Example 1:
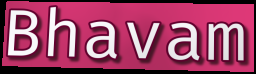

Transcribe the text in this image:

Bhavam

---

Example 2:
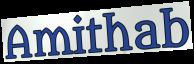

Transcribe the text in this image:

Amithab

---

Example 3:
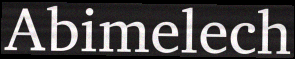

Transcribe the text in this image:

Abimelech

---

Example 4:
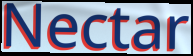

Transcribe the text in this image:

Nectar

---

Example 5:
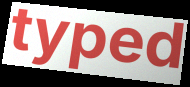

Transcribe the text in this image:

typed